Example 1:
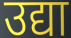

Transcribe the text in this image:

उद्या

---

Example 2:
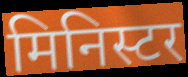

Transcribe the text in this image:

मिनिस्टर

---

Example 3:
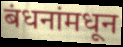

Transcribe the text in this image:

बंधनांमधून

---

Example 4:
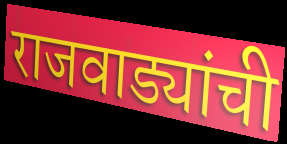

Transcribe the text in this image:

राजवाड्यांची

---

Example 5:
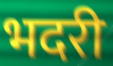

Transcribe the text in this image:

भदरी